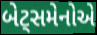
બેટ્સમેનોએ